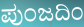
ಪುಂಜದಿಂ